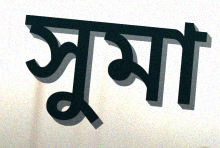
সুমা